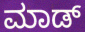
ಮಾಡ್